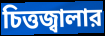
চিত্তজ্বালার